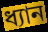
ধ্যান